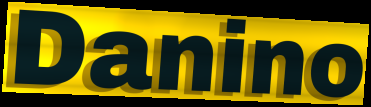
Danino